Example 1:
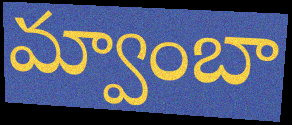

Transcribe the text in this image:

మ్వాంబా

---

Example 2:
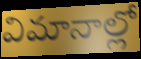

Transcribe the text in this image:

విమానాల్లో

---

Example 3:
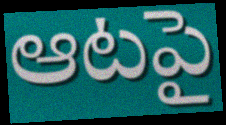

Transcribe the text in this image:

ఆటపై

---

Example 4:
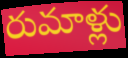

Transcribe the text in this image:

రుమాళ్లు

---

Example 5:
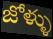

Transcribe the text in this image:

జోళ్ళు